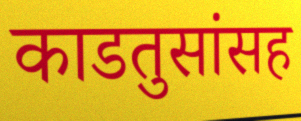
काडतुसांसह